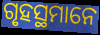
ଗୃହସ୍ଥମାନେ